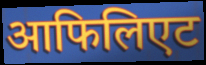
आफिलिएट